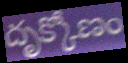
దృక్కోణం